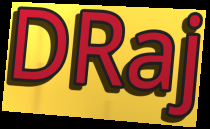
DRaj